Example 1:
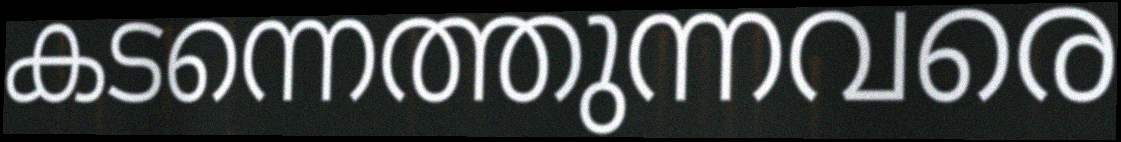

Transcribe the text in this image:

കടന്നെത്തുന്നവരെ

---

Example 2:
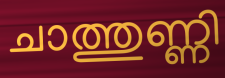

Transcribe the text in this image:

ചാത്തുണ്ണി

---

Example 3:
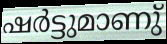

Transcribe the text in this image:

ഷർട്ടുമാണു്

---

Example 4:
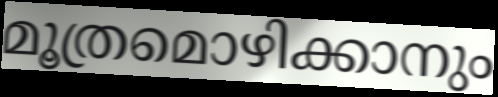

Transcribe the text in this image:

മൂത്രമൊഴിക്കാനും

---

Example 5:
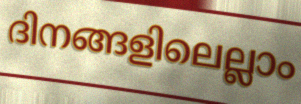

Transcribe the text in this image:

ദിനങ്ങളിലെല്ലാം